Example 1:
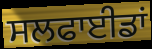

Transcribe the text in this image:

ਸਲਫਾਈਡਾਂ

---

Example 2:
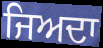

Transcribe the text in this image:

ਜਿਅਦਾ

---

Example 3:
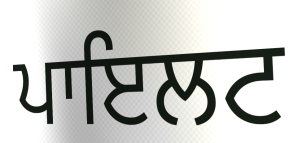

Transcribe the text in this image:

ਪਾਇਲਟ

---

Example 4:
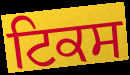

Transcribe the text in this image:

ਟਿਕਸ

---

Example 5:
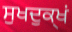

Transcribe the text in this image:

ਸੁਖਦੁਕ੍ਖਂ